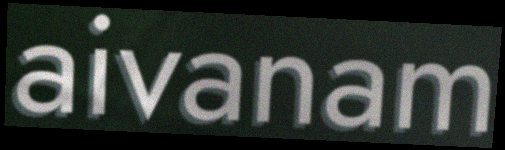
aivanam